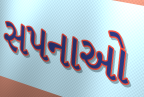
સપનાઓ